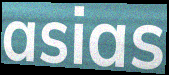
asias